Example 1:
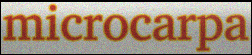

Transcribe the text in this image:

microcarpa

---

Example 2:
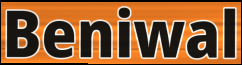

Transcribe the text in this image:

Beniwal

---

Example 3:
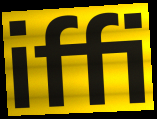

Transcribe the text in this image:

iffi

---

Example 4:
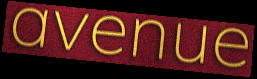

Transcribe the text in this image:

avenue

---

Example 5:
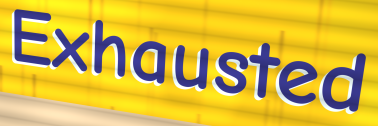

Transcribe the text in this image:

Exhausted